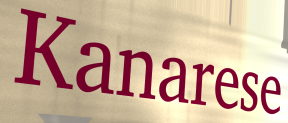
Kanarese